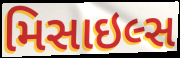
મિસાઇલ્સ